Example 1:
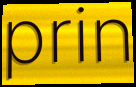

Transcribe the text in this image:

prin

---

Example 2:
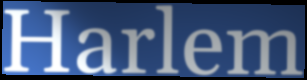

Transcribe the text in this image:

Harlem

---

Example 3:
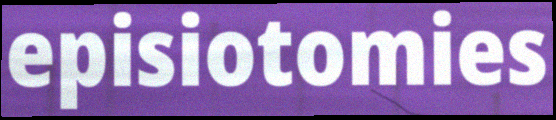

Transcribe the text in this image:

episiotomies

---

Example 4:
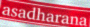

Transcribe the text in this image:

asadharana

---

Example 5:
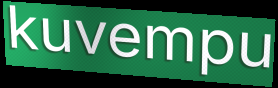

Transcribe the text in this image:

kuvempu